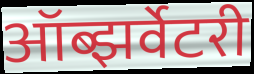
ऑब्झर्वेटरी